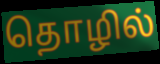
தொழில்